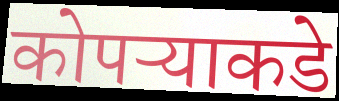
कोपऱ्याकडे